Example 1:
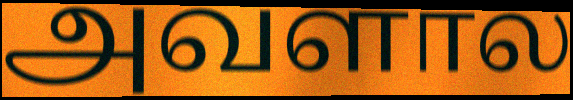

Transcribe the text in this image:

அவளால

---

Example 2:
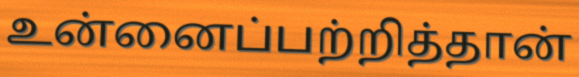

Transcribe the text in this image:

உன்னைப்பற்றித்தான்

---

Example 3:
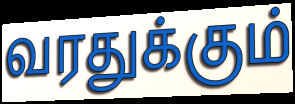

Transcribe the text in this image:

வரதுக்கும்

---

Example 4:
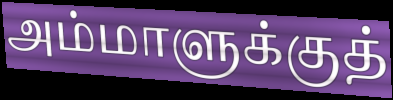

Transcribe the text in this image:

அம்மாளுக்குத்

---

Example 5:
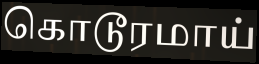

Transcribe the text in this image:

கொடூரமாய்